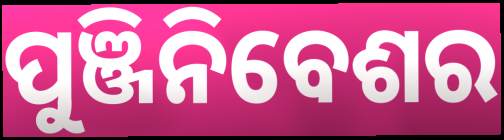
ପୁଞ୍ଜିନିବେଶର